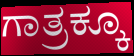
ಗಾತ್ರಕ್ಕೂ